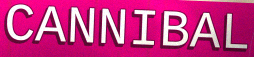
CANNIBAL